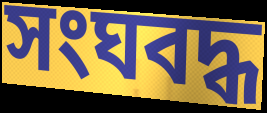
সংঘবদ্ধ